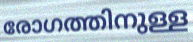
രോഗത്തിനുള്ള